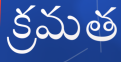
క్రమత